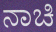
ನಾಚಿ